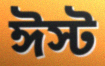
ঈস্ট